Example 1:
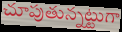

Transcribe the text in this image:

చూపుతున్నట్టుగా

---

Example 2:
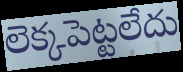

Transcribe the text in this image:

లెక్కపెట్టలేదు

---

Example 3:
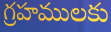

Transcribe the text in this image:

గ్రహములకు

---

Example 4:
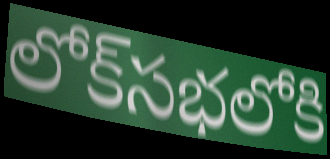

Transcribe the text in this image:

లోక్‌సభలోకి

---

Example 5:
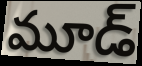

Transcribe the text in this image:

మూడ్